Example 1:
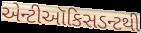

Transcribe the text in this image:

એન્ટીઑકિસડન્ટથી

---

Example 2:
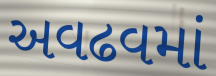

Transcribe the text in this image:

અવઢવમાં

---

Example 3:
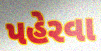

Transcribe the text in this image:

પહેરવા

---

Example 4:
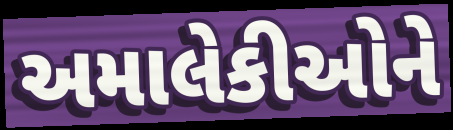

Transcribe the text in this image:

અમાલેકીઓને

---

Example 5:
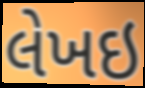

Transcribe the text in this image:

લેખઇ